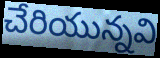
చేరియున్నవి